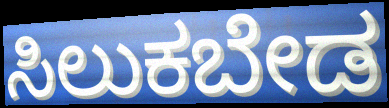
ಸಿಲುಕಬೇಡ